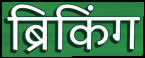
ब्रिकिंग